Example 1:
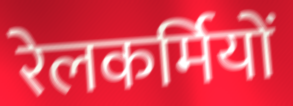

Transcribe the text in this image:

रेलकर्मियों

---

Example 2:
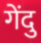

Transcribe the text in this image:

गेंदु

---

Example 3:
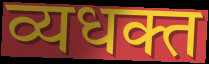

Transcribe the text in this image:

व्यधक्त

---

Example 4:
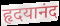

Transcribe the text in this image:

हृदयानंद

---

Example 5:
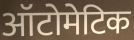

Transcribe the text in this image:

ऑटोमेटिक